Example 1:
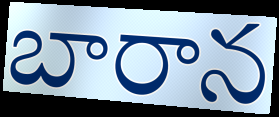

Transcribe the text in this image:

బారాన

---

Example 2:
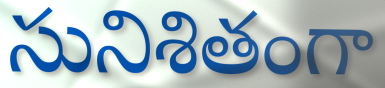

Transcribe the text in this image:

సునిశితంగా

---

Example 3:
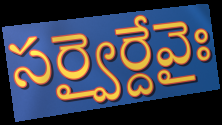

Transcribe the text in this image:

సర్వైర్దేవైః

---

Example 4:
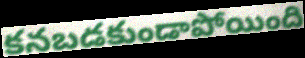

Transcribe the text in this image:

కనబడకుండాపోయింది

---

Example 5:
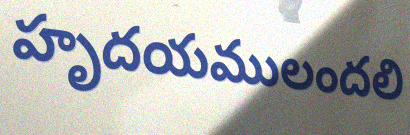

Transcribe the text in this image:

హృదయములందలి